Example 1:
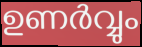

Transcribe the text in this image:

ഉണർവ്വും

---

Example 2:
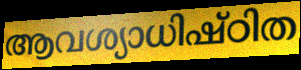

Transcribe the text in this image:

ആവശ്യാധിഷ്ഠിത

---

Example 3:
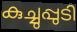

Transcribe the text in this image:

കുച്ചുപ്പുടി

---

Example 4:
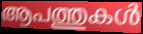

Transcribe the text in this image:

ആപത്തുകൾ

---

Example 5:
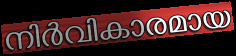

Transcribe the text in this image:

നിർവികാരമായ